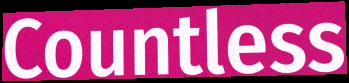
Countless